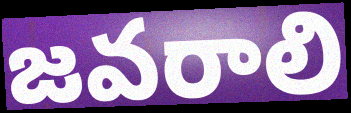
జవరాలి